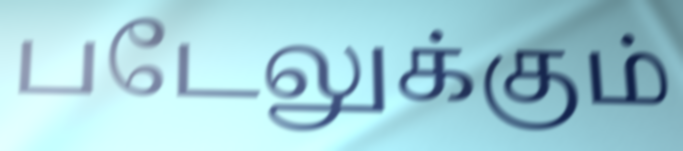
படேலுக்கும்